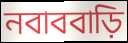
নবাববাড়ি